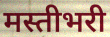
मस्तीभरी